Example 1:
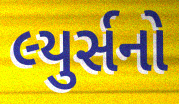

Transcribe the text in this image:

લ્યુર્સનો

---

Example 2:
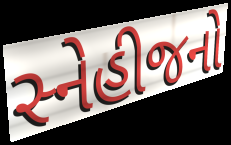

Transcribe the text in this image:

સ્નેહીજનો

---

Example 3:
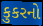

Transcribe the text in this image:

કુકરનો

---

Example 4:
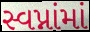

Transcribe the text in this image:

સ્વપ્નાંમાં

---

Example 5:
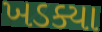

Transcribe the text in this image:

ખડક્યા